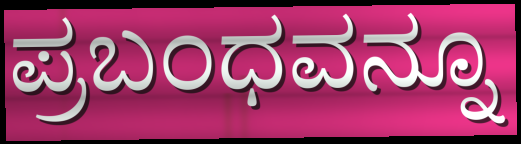
ಪ್ರಬಂಧವನ್ನೂ